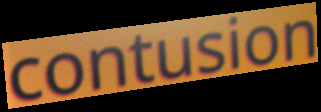
contusion